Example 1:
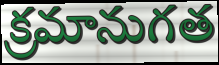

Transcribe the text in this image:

క్రమానుగత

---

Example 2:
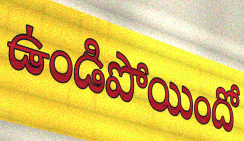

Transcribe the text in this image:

ఉండిపోయిందో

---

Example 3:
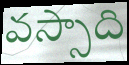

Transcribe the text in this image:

వస్సాది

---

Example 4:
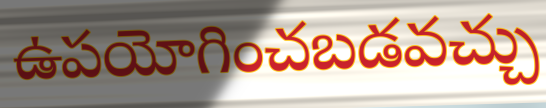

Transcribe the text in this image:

ఉపయోగించబడవచ్చు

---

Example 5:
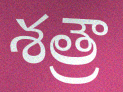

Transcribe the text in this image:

శత్రౌ